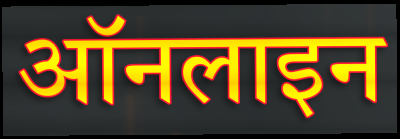
ऑनलाइन